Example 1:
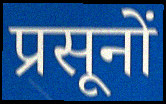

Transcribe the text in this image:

प्रसूनों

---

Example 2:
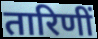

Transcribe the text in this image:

तारिणीं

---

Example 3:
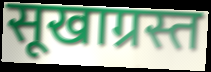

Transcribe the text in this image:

सूखाग्रस्‍त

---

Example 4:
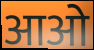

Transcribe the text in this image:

आओ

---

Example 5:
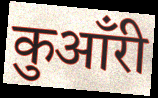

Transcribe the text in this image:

कुआँरी